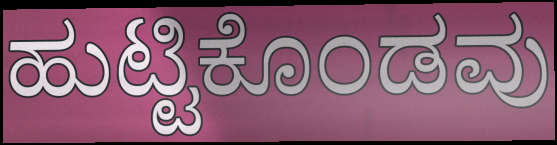
ಹುಟ್ಟಿಕೊಂಡವು